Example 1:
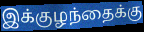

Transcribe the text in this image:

இக்குழந்தைக்கு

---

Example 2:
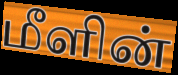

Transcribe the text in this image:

மீளின்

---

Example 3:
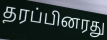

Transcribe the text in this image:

தரப்பினரது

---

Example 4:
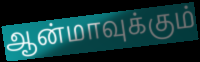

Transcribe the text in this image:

ஆன்மாவுக்கும்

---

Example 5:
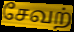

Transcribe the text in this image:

சேவற்